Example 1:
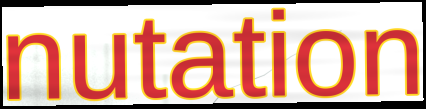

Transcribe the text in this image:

nutation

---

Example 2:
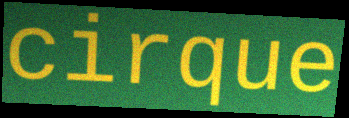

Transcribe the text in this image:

cirque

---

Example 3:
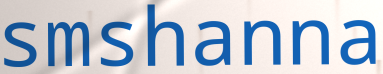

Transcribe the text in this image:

smshanna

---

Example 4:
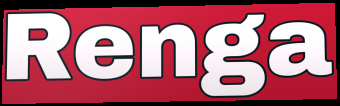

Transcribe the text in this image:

Renga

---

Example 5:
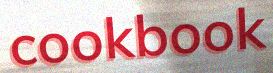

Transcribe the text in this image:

cookbook